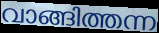
വാങ്ങിത്തന്ന